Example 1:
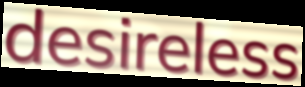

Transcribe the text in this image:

desireless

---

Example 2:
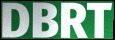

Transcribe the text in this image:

DBRT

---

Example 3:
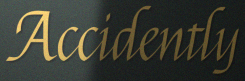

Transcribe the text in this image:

Accidently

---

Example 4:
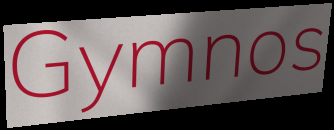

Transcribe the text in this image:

Gymnos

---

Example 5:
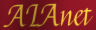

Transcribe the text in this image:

AIAnet